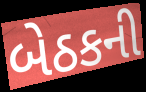
બેઠકની